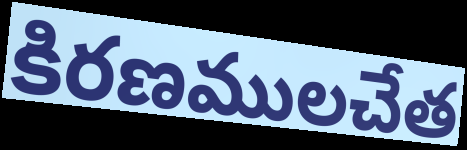
కిరణములచేత